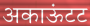
अकाऊंटट